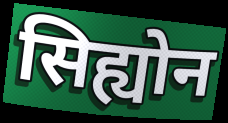
सिह्योन